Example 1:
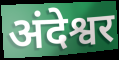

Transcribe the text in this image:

अंदेश्वर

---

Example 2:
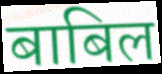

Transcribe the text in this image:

बाबिल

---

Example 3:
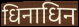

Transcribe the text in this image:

धिनाधिन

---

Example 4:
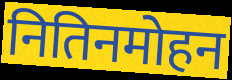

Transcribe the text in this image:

नितिनमोहन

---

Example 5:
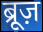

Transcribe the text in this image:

ब्रूज़